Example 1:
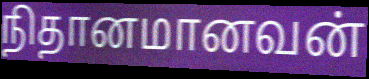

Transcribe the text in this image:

நிதானமானவன்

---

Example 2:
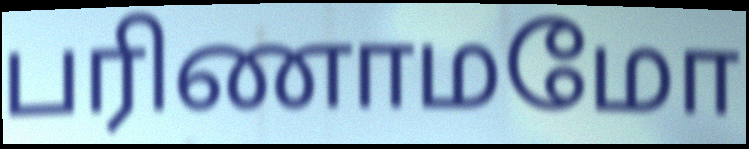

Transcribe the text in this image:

பரிணாமமோ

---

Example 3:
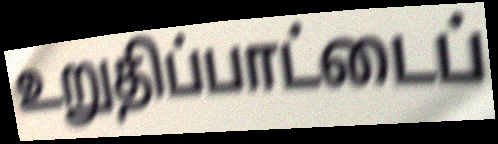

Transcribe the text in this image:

உறுதிப்பாட்டைப்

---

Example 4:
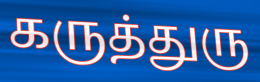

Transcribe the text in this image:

கருத்துரு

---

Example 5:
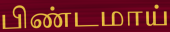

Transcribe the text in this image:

பிண்டமாய்